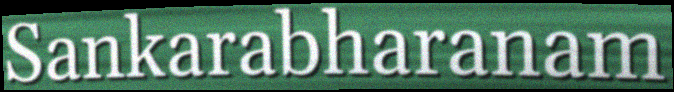
Sankarabharanam